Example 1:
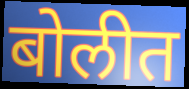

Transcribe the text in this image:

बोलीत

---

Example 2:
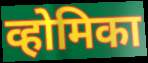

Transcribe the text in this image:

व्होमिका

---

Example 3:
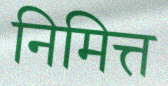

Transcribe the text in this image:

निमित्त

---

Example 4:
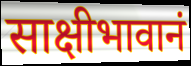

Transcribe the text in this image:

साक्षीभावानं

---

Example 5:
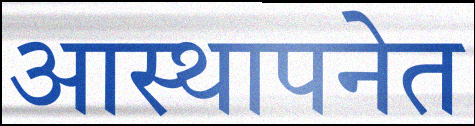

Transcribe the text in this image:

आस्थापनेत